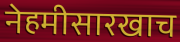
नेहमीसारखाच